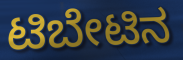
ಟಿಬೇಟಿನ